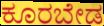
ಕೂರಬೇಡ